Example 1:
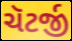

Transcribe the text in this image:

ચૅટર્જી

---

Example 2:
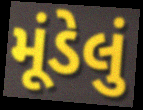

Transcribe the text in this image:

મૂંડેલું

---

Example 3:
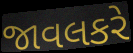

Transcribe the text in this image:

જાવલકરે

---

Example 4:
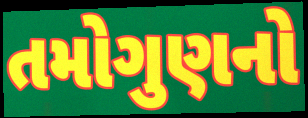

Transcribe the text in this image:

તમોગુણનો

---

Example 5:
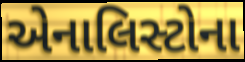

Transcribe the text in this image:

એનાલિસ્ટોના